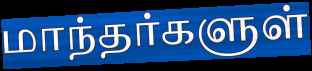
மாந்தர்களுள்